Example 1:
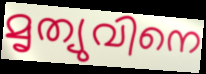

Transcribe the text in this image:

മൃത്യുവിനെ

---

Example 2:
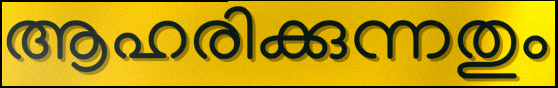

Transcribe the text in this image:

ആഹരിക്കുന്നതും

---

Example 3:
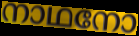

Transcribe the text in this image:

നാഥനോ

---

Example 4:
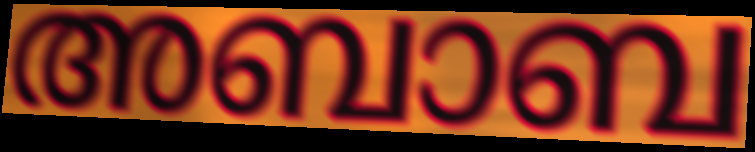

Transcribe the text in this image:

അബാബ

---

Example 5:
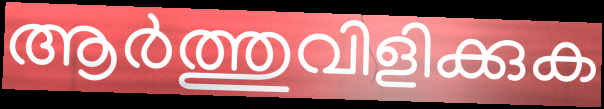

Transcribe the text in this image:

ആർത്തുവിളിക്കുക